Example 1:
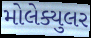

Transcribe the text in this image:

મોલેક્યુલર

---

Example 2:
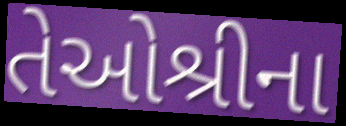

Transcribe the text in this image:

તેઓશ્રીના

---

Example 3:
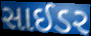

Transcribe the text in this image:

સાઈડર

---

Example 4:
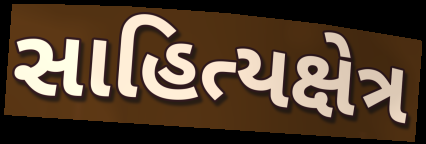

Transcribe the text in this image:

સાહિત્યક્ષેત્ર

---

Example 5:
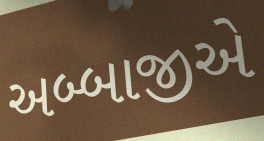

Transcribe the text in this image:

અબ્બાજીએ